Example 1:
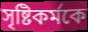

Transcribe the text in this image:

সৃষ্টিকর্মকে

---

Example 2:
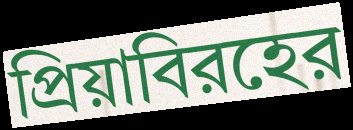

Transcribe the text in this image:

প্রিয়াবিরহের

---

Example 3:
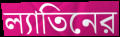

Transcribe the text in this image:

ল্যাতিনের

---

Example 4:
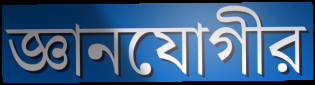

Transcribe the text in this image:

জ্ঞানযোগীর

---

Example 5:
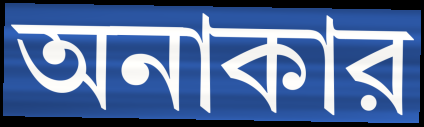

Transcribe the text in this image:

অনাকার